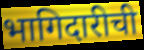
भागिदारीची